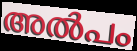
അൽപം